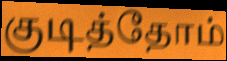
குடித்தோம்